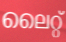
ലൈറ്റ്